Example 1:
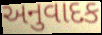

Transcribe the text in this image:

અનુવાદક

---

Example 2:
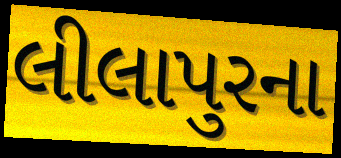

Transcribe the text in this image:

લીલાપુરના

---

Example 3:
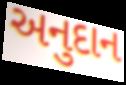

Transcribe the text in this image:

અનુદાન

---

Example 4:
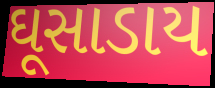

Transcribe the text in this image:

ઘૂસાડાય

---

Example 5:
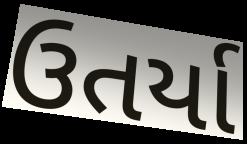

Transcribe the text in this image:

ઉતર્યા